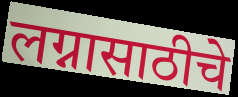
लग्नासाठीचे